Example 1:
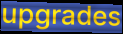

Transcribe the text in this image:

upgrades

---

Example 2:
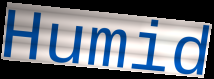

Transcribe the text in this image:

Humid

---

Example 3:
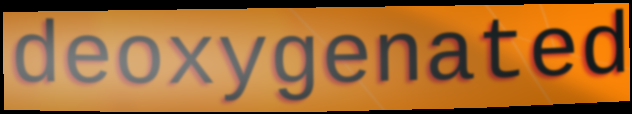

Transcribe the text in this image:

deoxygenated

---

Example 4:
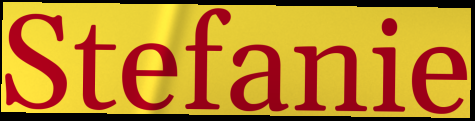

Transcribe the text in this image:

Stefanie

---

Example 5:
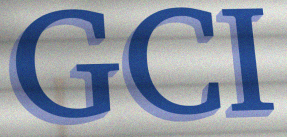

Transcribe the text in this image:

GCI